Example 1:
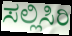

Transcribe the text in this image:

ಸಲ್ಲಿಸಿರಿ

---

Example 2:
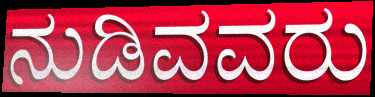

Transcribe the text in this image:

ನುಡಿವವರು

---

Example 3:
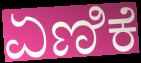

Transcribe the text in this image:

ಏಣಿಕೆ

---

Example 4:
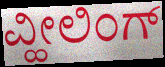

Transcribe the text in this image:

ವ್ಹೀಲಿಂಗ್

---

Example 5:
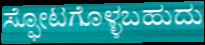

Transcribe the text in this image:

ಸ್ಫೋಟಗೊಳ್ಳಬಹುದು